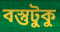
বস্তুটুকু